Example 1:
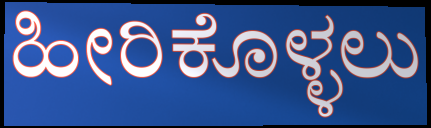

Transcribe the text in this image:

ಹೀರಿಕೊಳ್ಳಲು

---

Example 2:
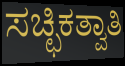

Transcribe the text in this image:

ಸಚ್ಛಿಕತ್ವಾತಿ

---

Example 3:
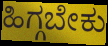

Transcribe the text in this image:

ಹಿಗ್ಗಬೇಕು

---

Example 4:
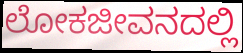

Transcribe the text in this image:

ಲೋಕಜೀವನದಲ್ಲಿ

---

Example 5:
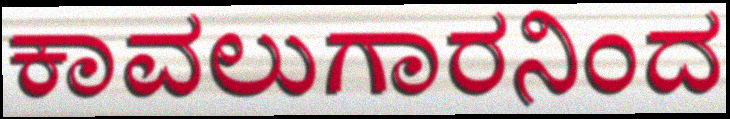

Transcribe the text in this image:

ಕಾವಲುಗಾರನಿಂದ